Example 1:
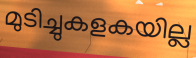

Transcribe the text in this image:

മുടിച്ചുകളകയില്ല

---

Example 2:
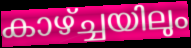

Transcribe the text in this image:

കാഴ്ച്ചയിലും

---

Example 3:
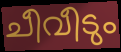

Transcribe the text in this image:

ചീവീടും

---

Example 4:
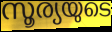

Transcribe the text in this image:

സൂര്യയുടെ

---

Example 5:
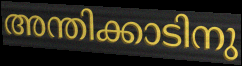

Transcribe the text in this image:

അന്തിക്കാടിനു